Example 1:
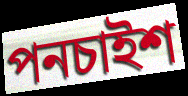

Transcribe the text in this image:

পনচাইশ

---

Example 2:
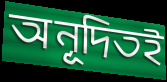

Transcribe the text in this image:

অনূদিতই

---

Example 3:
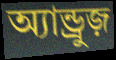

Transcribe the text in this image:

অ্যান্ড্রুজ়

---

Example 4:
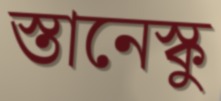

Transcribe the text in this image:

স্তানেস্কু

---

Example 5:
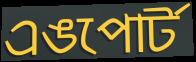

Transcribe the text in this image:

এঙপোর্ট